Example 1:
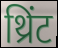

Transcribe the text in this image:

थ्रिंट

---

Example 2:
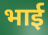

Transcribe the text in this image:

भार्ई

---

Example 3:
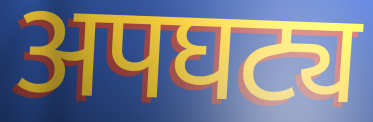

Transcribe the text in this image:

अपघट्य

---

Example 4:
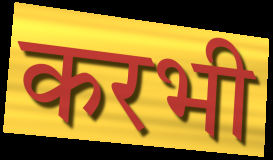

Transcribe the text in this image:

करभी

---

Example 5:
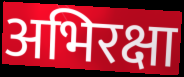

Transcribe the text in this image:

अभिरक्षा